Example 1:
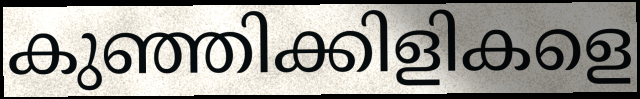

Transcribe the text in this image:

കുഞ്ഞിക്കിളികളെ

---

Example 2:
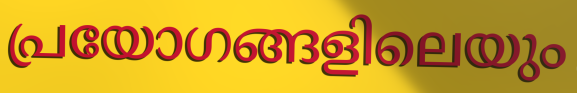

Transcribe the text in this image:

പ്രയോഗങ്ങളിലെയും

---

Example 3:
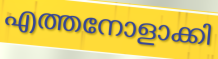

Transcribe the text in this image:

എത്തനോളാക്കി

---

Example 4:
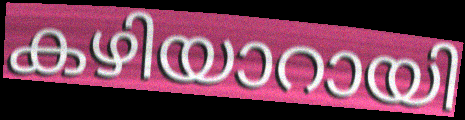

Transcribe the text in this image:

കഴിയാറായി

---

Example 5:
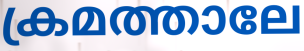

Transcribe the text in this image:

ക്രമത്താലേ